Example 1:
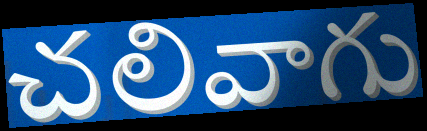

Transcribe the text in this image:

చలివాగు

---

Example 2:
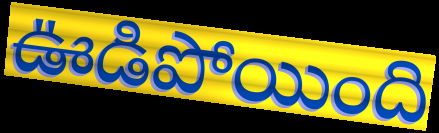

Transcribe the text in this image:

ఊడిపోయింది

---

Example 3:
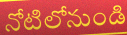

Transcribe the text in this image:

నోటిలోనుండి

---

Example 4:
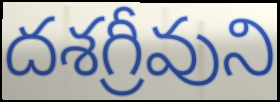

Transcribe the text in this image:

దశగ్రీవుని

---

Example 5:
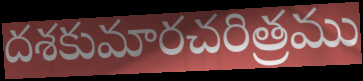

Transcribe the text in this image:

దశకుమారచరిత్రము